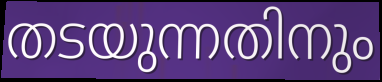
തടയുന്നതിനും